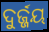
ଦୁର୍ଜ୍ଜୟ